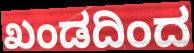
ಖಂಡದಿಂದ